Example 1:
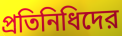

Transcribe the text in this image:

প্রতিনিধিদের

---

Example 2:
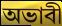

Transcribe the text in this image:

অভাবী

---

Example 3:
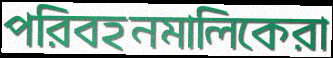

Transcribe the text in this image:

পরিবহনমালিকেরা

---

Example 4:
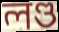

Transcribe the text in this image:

লণ্ড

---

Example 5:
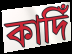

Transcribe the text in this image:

কাদিঁ